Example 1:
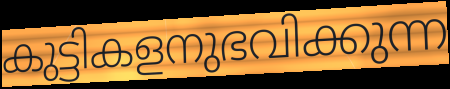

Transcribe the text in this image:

കുട്ടികളനുഭവിക്കുന്ന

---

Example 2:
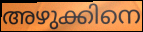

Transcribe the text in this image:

അഴുക്കിനെ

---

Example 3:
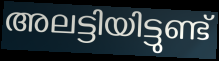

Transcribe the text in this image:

അലട്ടിയിട്ടുണ്ട്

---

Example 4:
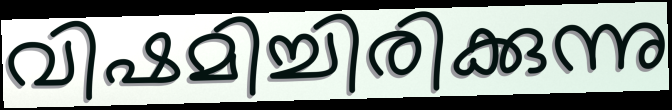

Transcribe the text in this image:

വിഷമിച്ചിരിക്കുന്നു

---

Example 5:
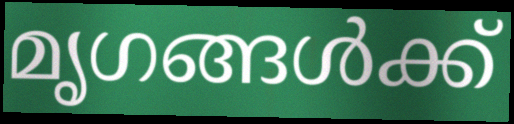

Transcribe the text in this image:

മൃഗങ്ങൾക്ക്